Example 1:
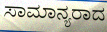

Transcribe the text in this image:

ಸಾಮಾನ್ಯರಾದ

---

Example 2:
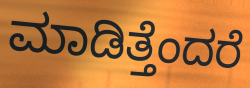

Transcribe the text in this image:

ಮಾಡಿತ್ತೆಂದರೆ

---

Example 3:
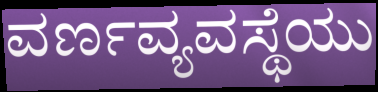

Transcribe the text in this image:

ವರ್ಣವ್ಯವಸ್ಥೆಯು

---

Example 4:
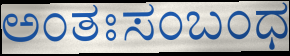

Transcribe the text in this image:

ಅಂತಃಸಂಬಂಧ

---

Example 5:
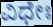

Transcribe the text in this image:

ವಿಧೇಃ